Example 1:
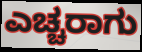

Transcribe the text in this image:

ಎಚ್ಚರಾಗು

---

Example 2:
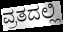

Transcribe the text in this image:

ವ್ರತದಲ್ಲಿ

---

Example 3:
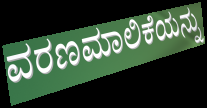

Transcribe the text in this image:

ವರಣಮಾಲಿಕೆಯನ್ನು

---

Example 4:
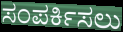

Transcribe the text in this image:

ಸಂಪರ್ಕಿಸಲು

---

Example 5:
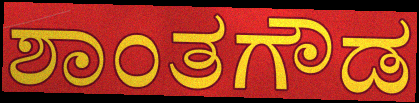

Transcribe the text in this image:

ಶಾಂತಗೌಡ